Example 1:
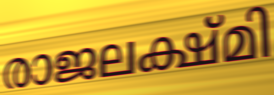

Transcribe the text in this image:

രാജലക്ഷ്മി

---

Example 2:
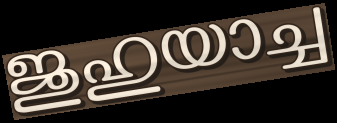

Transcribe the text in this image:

ജുഹുയാച്ച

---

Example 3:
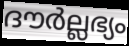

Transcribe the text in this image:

ദൗർല്ലഭ്യം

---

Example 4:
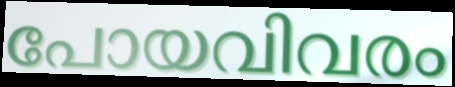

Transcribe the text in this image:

പോയവിവരം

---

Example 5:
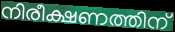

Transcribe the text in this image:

നിരീക്ഷണത്തിന്